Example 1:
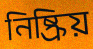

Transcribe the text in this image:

নিষ্ক্রিয়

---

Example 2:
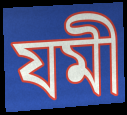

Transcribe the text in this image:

যমী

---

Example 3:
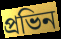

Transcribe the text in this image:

প্রভিন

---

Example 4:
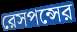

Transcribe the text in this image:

রেসপন্সের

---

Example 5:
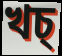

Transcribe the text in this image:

খচ্